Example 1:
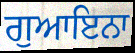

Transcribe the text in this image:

ਗੁਆਇਨਾ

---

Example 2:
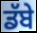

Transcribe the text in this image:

ਡੱਬੇ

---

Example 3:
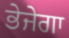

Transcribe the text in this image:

ਭੇਜੇਗਾ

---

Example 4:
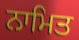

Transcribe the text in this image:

ਨਾਮਿਤ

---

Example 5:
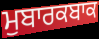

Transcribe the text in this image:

ਮੁਬਾਰਕਬਾਕ